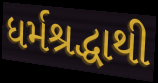
ધર્મશ્રદ્ધાથી